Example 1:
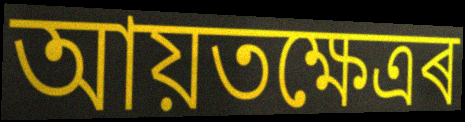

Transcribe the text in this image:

আয়তক্ষেত্ৰৰ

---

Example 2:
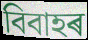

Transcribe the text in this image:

বিবাহৰ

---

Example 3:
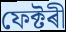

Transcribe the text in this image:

ফেক্টৰী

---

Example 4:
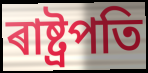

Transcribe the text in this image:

ৰাষ্ট্ৰপতি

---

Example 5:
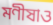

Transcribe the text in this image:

মণীষাও